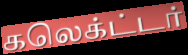
கலெக்ட்டர்